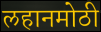
लहानमोठी